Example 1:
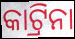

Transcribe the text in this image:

କାଟ୍ରିନା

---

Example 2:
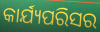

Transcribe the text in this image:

କାର୍ଯ୍ୟପରିସର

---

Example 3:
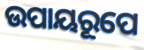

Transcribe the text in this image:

ଉପାୟରୂପେ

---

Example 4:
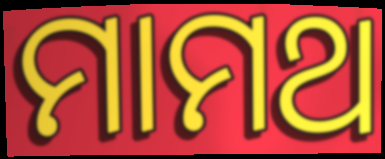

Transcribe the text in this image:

ମାମଥ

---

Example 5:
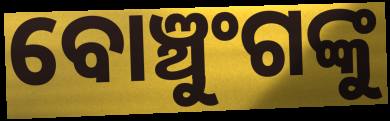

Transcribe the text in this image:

ବୋଞ୍ଚୁଂଗଙ୍କୁ